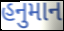
હનુમાન